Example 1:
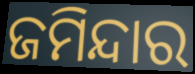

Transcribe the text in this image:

ଜମିନ୍ଦାର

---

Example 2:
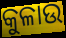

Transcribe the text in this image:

କୁଳାଉ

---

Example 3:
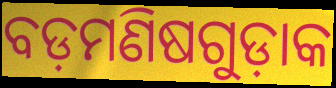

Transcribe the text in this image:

ବଡ଼ମଣିଷଗୁଡ଼ାକ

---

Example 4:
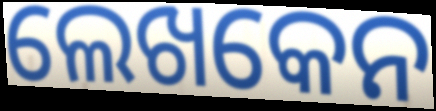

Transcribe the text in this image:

ଲେଖକେନ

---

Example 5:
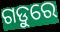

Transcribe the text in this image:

ଗଡୁରେ